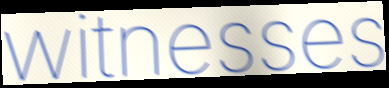
witnesses